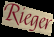
Rieger